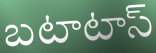
బటాటాస్